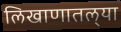
लिखाणातल्या